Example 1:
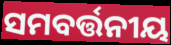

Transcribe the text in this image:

ସମବର୍ତ୍ତନୀୟ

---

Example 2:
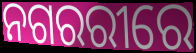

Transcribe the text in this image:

ନଗରରୀରେ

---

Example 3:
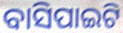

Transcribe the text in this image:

ବାସିପାଇଟି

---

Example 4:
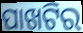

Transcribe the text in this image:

ପାଖଟିର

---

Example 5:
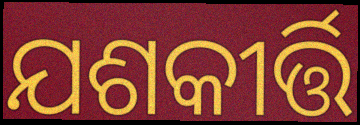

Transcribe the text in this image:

ଯଶକୀର୍ତ୍ତି